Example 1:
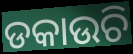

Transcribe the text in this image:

ଡକାଉଚି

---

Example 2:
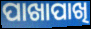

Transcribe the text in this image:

ପାଖାପାଖି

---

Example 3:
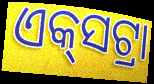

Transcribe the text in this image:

ଏକ୍‍ସଟ୍ରା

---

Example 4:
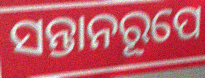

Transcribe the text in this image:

ସନ୍ତାନରୂପେ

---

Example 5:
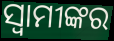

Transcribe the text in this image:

ସ୍ୱାମୀଙ୍କର